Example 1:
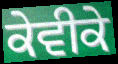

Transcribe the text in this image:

ਕੇਵੀਕੇ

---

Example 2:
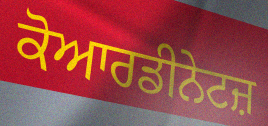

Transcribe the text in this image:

ਕੋਆਰਡੀਨੇਟਜ਼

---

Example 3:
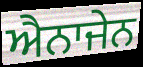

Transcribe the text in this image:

ਐਨਾਜੇਨ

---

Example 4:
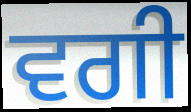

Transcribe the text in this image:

ਵਗੀ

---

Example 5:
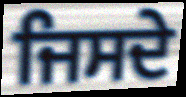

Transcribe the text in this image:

ਜਿਸਦੇ